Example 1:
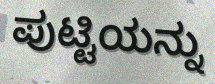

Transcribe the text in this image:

ಪುಟ್ಟಿಯನ್ನು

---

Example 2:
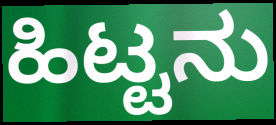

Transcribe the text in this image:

ಹಿಟ್ಟನು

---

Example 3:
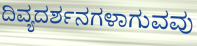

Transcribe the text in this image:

ದಿವ್ಯದರ್ಶನಗಳಾಗುವವು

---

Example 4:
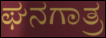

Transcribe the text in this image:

ಘನಗಾತ್ರ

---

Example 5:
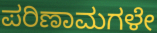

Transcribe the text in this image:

ಪರಿಣಾಮಗಳೇ